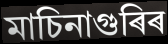
মাচিনাগুৰিৰ